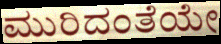
ಮುರಿದಂತೆಯೇ